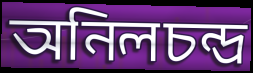
অনিলচন্দ্র